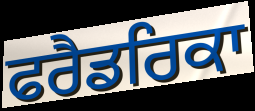
ਫਰੈਡਰਿਕਾ